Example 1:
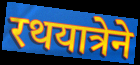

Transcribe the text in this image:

रथयात्रेने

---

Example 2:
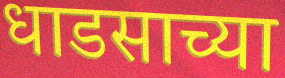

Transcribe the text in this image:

धाडसाच्या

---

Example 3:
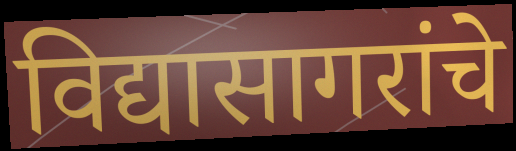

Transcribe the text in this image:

विद्यासागरांचे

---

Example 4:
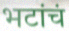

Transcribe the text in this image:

भटांचं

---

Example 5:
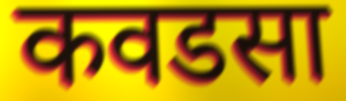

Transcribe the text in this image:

कवडसा